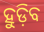
ହୁଡ଼ିବ